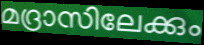
മദ്രാസിലേക്കും